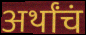
अर्थांचं